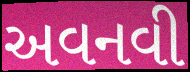
અવનવી